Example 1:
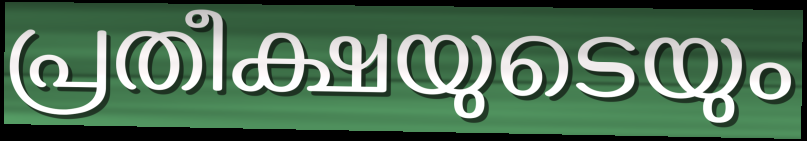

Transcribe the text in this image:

പ്രതീക്ഷയുടെയും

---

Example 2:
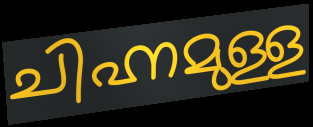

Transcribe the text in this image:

ചിഹ്നമുള്ള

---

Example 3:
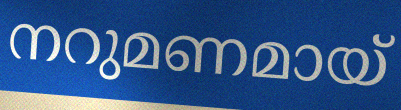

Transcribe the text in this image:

നറുമണമായ്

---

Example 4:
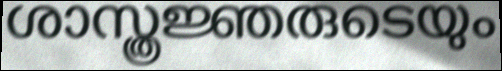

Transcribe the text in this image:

ശാസ്ത്രജ്ഞരുടെയും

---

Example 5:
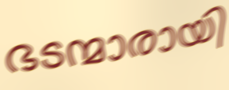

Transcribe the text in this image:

ഭടന്മാരായി